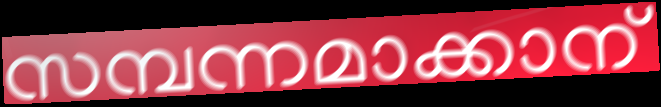
സമ്പന്നമാക്കാന്